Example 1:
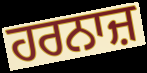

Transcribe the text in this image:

ਹਰਨਾਜ਼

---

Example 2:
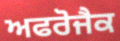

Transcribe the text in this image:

ਅਫਰੋਜੈਕ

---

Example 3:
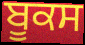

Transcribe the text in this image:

ਬੂਕਸ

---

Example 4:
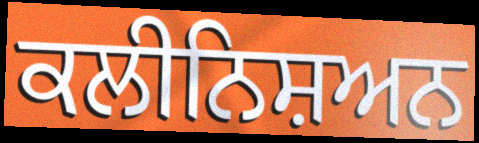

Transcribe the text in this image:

ਕਲੀਨਿਸ਼ਅਨ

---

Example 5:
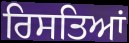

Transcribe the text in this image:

ਰਿਸਤਿਆਂ